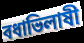
বধাভিলাষী